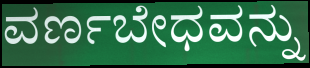
ವರ್ಣಬೇಧವನ್ನು